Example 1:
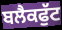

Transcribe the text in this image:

ਬਲੈਕਫੁੱਟ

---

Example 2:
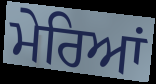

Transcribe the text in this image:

ਮੇਰਿਆਂ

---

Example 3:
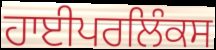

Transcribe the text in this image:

ਹਾਈਪਰਲਿੰਕਸ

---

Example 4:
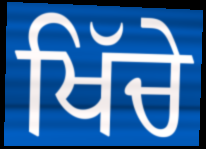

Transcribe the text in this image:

ਖਿੱਚੇ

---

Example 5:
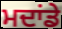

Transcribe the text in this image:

ਮਦਾਂਡੇ